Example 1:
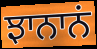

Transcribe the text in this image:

ਝਾਨਾਨਂ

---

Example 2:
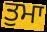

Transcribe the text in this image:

ਤੁਮਾ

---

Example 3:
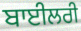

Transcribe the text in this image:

ਬਾਈਲਰੀ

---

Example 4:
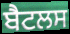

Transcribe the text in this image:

ਬੈਟਲਸ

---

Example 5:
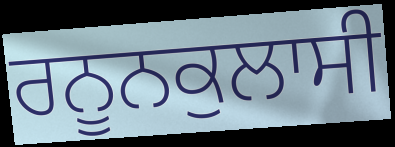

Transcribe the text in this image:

ਰਨੂਨਕੁਲਾਸੀ